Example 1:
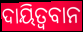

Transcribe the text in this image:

ଦାୟିତ୍ଵବାନ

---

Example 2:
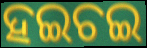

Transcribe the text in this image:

ହଇଚଇ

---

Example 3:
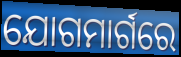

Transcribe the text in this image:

ଯୋଗମାର୍ଗରେ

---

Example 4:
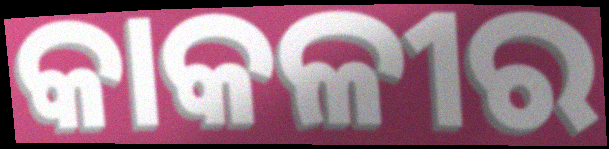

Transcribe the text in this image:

କାକଳୀର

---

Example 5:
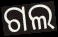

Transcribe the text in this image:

ଗଲ